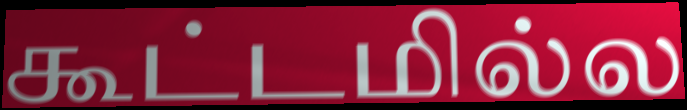
கூட்டமில்ல